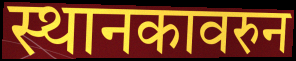
स्थानकावरुन